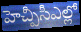
హెచ్పీసీఎల్లో